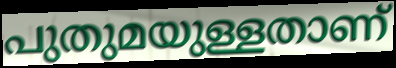
പുതുമയുള്ളതാണ്